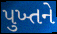
પુખ્તને